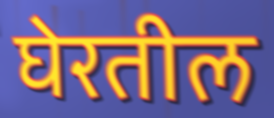
घेरतील